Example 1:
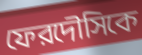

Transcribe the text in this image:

ফেরদৌসিকে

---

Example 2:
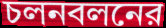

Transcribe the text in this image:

চলনবলনের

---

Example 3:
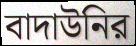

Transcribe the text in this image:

বাদাউনির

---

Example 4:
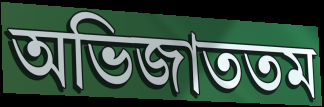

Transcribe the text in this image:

অভিজাততম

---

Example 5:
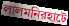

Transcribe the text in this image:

লালমনিরহাটে